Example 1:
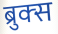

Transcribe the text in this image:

ब्रुक्‍स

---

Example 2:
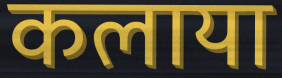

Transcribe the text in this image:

कलाया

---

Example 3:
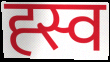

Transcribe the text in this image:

ह्स्व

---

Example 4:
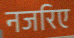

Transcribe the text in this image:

नजरिए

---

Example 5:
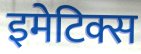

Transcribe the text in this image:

इमेटिक्स